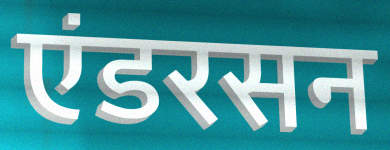
एंडरसन